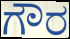
ಗೌರ